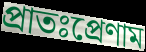
প্রাতঃপ্রেণাম